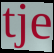
tje